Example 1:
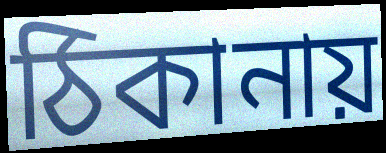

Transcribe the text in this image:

ঠিকানায়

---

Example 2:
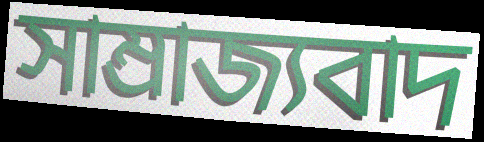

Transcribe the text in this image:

সাম্রাজ্যবাদ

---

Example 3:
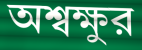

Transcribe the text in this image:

অশ্বক্ষুর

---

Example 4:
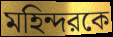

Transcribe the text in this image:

মহিন্দরকে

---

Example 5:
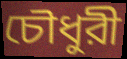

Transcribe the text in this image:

চৌধুরী